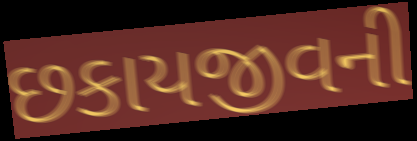
છકાયજીવની